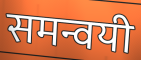
समन्वयी